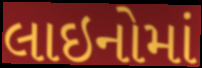
લાઇનોમાં